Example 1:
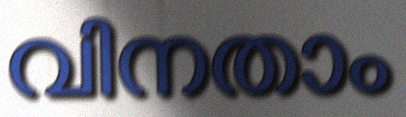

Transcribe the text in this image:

വിനതാം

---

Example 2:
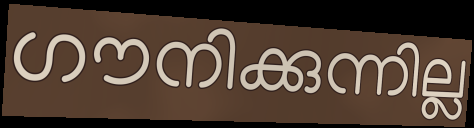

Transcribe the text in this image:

ഗൗനിക്കുന്നില്ല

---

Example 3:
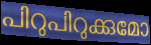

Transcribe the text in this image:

പിറുപിറുക്കുമോ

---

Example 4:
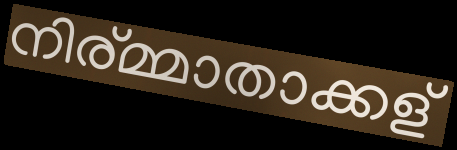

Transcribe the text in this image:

നിര്മ്മാതാക്കള്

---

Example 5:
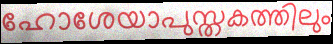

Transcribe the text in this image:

ഹോശേയാപുസ്തകത്തിലും